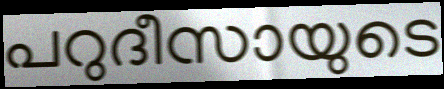
പറുദീസായുടെ